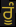
ਰੂੰ